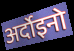
अर्दोइनो